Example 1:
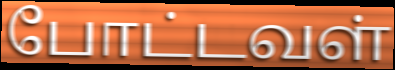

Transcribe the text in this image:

போட்டவள்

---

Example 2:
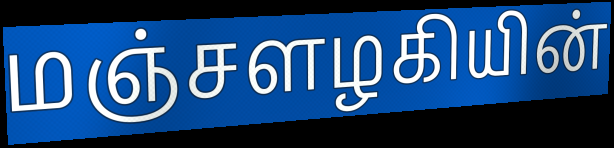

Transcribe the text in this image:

மஞ்சளழகியின்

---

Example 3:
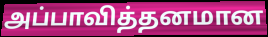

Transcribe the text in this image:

அப்பாவித்தனமான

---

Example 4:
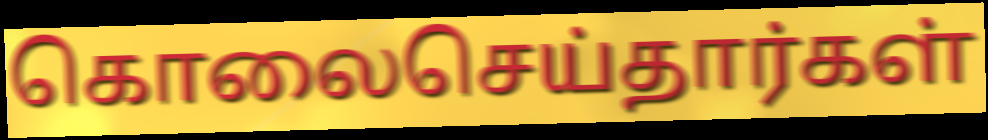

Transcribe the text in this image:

கொலைசெய்தார்கள்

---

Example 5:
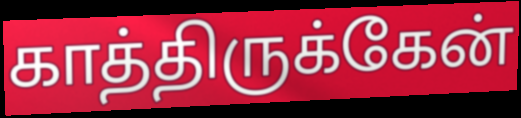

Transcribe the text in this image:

காத்திருக்கேன்